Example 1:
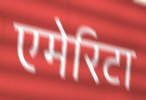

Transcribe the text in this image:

एमेरिटा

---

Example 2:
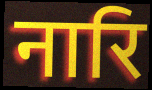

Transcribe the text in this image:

नारि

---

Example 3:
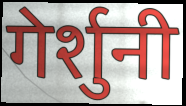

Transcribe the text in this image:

गेर्शुनी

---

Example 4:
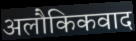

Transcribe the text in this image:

अलौकिकवाद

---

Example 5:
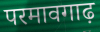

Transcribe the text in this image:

परमावगाढ़